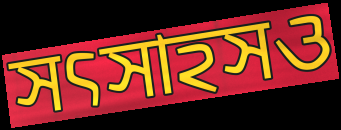
সৎসাহসও